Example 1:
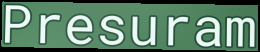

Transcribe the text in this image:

Presuram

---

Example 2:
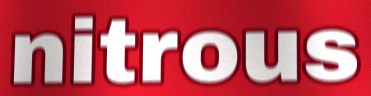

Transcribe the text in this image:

nitrous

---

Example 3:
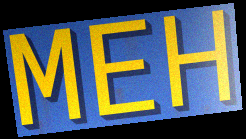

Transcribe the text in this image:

MEH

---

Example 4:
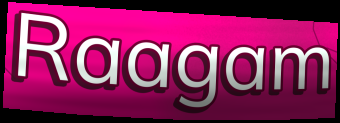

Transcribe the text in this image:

Raagam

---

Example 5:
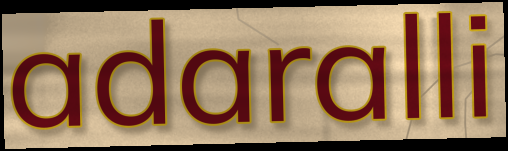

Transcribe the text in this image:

adaralli